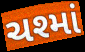
ચશ્માં